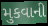
મુકવાની